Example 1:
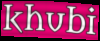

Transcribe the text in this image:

khubi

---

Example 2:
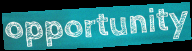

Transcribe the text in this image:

opportunity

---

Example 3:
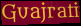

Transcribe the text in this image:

Guajrati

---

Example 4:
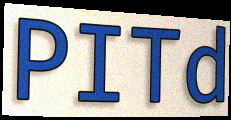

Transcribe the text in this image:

PITd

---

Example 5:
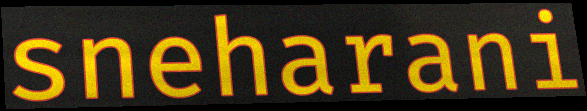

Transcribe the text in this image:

sneharani